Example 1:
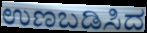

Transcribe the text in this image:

ಉಣಬಡಿಸಿದ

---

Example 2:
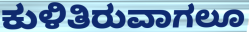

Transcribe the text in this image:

ಕುಳಿತಿರುವಾಗಲೂ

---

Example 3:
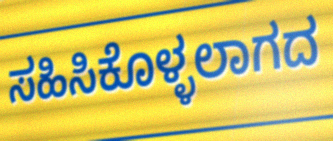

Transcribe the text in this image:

ಸಹಿಸಿಕೊಳ್ಳಲಾಗದ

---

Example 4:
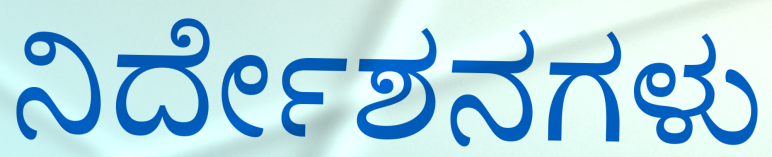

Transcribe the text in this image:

ನಿರ್ದೇಶನಗಳು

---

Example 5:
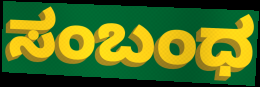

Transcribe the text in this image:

ಸಂಬಂಧ